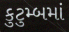
કુટુમ્બમાં